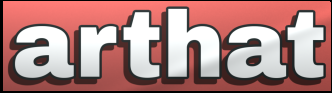
arthat